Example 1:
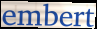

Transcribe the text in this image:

embert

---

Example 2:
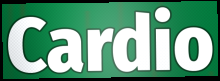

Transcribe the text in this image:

Cardio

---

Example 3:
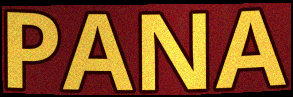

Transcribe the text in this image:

PANA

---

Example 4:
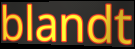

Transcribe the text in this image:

blandt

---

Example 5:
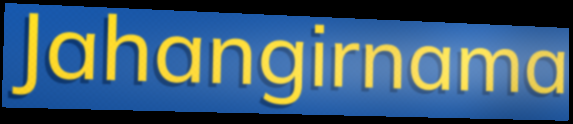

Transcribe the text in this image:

Jahangirnama